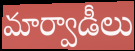
మార్వాడీలు